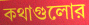
কথাগুলোর